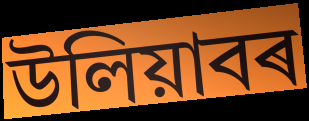
উলিয়াবৰ